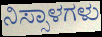
ನಿಸ್ಸಾಳಗಳು